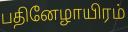
பதினேழாயிரம்